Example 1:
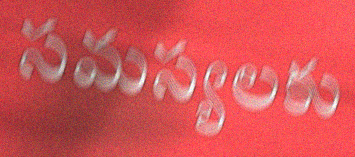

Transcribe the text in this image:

సమస్యలకు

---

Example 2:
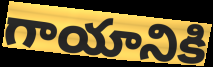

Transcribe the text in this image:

గాయానికి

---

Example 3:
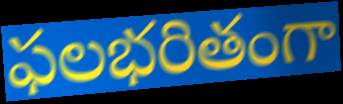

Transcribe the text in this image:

ఫలభరితంగా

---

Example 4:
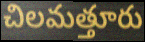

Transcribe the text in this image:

చిలమత్తూరు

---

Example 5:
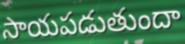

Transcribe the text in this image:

సాయపడుతుందా